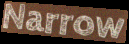
Narrow